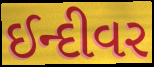
ઈન્દીવર